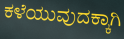
ಕಳೆಯುವುದಕ್ಕಾಗಿ